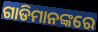
ଗାଡିମାନଙ୍କରେ